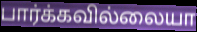
பார்க்கவில்லையா